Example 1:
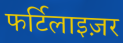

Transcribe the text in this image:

फर्टिलाइज़र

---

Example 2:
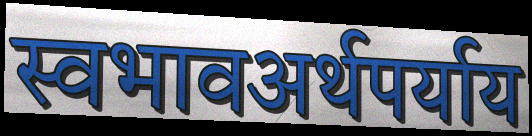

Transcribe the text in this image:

स्वभावअर्थपर्याय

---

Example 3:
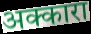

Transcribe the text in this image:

अक्कारा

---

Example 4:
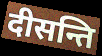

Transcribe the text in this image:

दीसन्ति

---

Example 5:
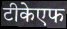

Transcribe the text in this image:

टीकेएफ